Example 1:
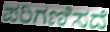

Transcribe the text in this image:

ಪರಿಗಣಿಸದೆ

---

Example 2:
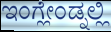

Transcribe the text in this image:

ಇಂಗ್ಲೇಂಡ್ನಲ್ಲಿ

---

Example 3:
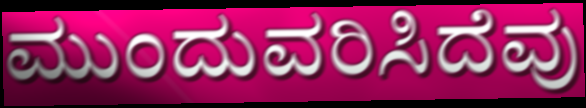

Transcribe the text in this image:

ಮುಂದುವರಿಸಿದೆವು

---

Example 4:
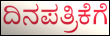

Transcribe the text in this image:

ದಿನಪತ್ರಿಕೆಗೆ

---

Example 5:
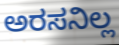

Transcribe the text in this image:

ಅರಸನಿಲ್ಲ